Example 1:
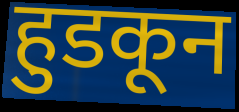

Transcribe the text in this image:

हुडकून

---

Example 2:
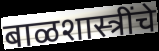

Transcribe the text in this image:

बाळशास्त्रींचे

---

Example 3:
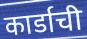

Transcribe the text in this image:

कार्डाची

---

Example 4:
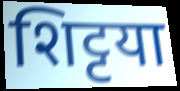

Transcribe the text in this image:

शिट्टया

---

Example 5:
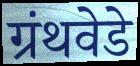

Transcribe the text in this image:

ग्रंथवेडे